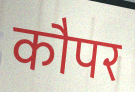
कौपर